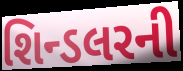
શિન્ડલરની